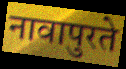
नावापुरते